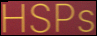
HSPs